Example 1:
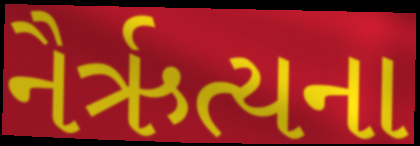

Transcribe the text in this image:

નૈર્ઋત્યના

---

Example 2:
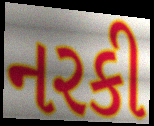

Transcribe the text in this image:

નરકી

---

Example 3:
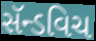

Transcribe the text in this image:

સૅન્ડવિચ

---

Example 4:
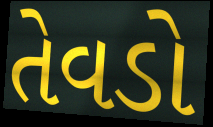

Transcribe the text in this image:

તેવડો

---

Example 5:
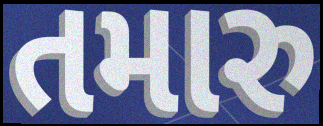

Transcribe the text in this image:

તમારુ